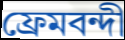
ফ্রেমবন্দী